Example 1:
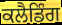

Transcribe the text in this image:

ਕਲੈਡਿੰਗ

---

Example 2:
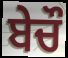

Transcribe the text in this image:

ਬੇਚੌ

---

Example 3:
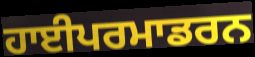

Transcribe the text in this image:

ਹਾਈਪਰਮਾਡਰਨ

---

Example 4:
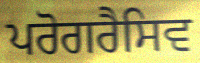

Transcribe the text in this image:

ਪਰੋਗਰੈਸਿਵ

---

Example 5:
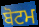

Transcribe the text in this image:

ਬੋਟਮ